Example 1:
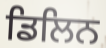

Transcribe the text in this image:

ਡਿਲਿਨ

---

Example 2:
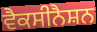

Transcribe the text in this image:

ਵੈਕਸੀਨੈਸ਼ਨ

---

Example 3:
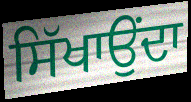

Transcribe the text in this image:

ਸਿੱਖਾਉਂਦਾ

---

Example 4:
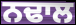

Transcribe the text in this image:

ਨਢਾਲ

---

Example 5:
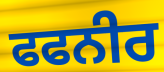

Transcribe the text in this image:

ਫਫਨੀਰ